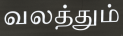
வலத்தும்